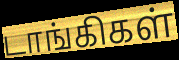
டாங்கிகள்